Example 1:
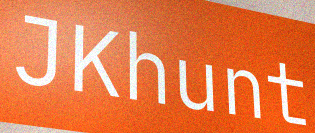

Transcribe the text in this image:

JKhunt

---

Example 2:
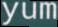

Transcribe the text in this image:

yum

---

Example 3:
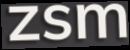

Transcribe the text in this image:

zsm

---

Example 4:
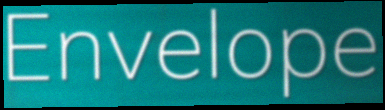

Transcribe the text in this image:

Envelope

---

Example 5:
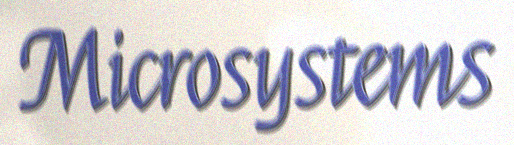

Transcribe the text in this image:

Microsystems